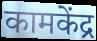
कामकेंद्र